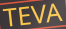
TEVA